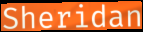
Sheridan